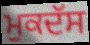
ਮੁਕਦੱਸ